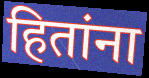
हितांना